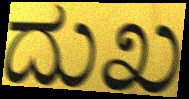
ದುಖ